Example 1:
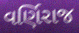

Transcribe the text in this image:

વર્ણિરાજ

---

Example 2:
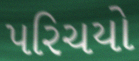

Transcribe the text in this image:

પરિચયો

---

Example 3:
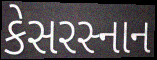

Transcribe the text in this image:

કેસરસ્નાન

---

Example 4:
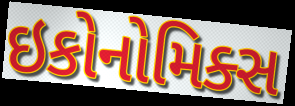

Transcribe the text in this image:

ઇકોનોમિક્સ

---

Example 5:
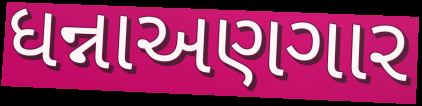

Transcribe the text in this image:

ધન્નાઅણગાર